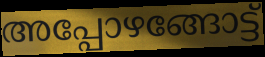
അപ്പോഴങ്ങോട്ട്